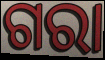
ଗରା